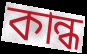
কান্ধ